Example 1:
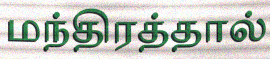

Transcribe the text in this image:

மந்திரத்தால்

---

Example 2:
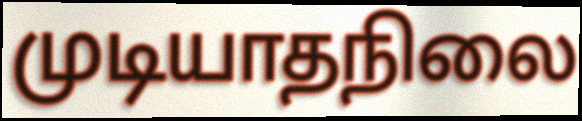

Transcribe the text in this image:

முடியாதநிலை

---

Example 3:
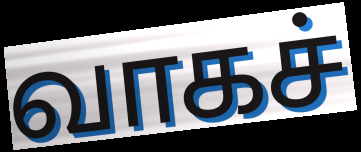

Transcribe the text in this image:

வாகச்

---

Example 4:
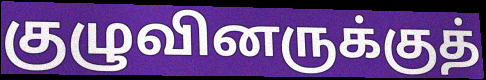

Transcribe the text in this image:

குழுவினருக்குத்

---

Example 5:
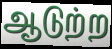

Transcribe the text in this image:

ஆடுற்ற